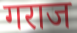
गराज